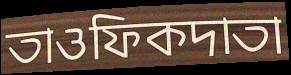
তাওফিকদাতা